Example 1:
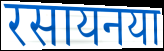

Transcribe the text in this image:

रसायनया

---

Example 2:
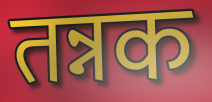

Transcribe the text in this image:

तन्नक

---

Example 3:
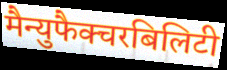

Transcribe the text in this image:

मैन्युफैक्चरबिलिटी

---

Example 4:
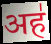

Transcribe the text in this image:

अह॑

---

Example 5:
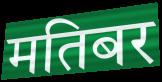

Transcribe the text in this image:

मतिबर